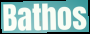
Bathos